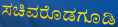
ಸಚಿವರೊಡಗೂಡಿ